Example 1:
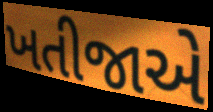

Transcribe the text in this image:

ખતીજાએ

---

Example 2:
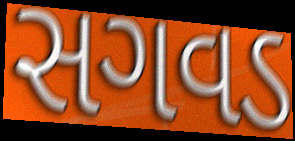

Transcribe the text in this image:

સગવડ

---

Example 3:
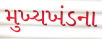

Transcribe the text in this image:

મુખ્યખંડના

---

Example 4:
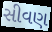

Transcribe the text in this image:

સીવણ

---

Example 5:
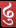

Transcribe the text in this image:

ઢુ